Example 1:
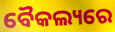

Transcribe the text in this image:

ବୈକଲ୍ୟରେ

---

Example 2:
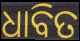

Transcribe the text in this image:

ଧାବିତ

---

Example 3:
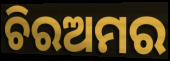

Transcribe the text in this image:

ଚିରଅମର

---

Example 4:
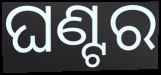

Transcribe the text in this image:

ଘଣ୍ଟର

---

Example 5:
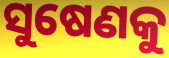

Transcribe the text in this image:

ସୁଷେଣକୁ